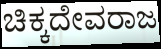
ಚಿಕ್ಕದೇವರಾಜ